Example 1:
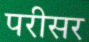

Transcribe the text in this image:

परीसर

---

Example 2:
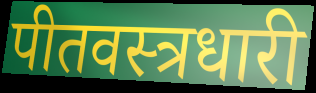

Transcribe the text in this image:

पीतवस्त्रधारी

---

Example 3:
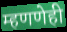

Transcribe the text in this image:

म्हणणेही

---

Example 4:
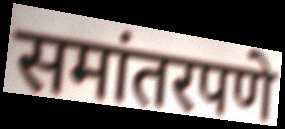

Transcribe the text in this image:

समांतरपणे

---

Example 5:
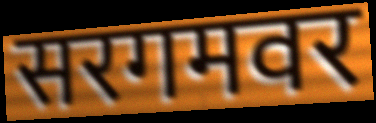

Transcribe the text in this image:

सरगमवर